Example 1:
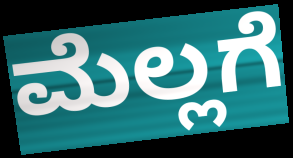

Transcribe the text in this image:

ಮೆಲ್ಲಗೆ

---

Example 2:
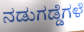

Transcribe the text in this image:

ನಡುಗಡ್ಡೆಗಳೆ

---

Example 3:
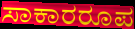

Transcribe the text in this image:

ಸಾಕಾರರೂಪ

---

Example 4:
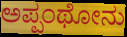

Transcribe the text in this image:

ಅಪ್ಪಂಥೋನು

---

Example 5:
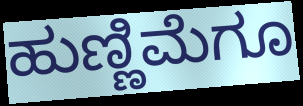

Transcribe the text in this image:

ಹುಣ್ಣಿಮೆಗೂ